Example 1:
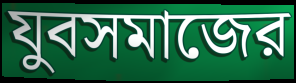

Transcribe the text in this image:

যুবসমাজের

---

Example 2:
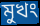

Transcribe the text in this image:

মুখং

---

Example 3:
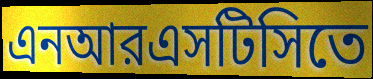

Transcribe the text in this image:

এনআরএসটিসিতে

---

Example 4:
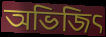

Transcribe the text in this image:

অভিজিৎ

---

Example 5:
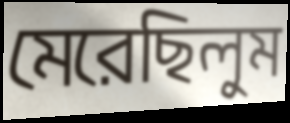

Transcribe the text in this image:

মেরেছিলুম